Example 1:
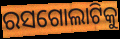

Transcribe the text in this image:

ରସଗୋଲାଟିକୁ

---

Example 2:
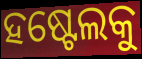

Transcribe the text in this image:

ହଷ୍ଟେଲକୁ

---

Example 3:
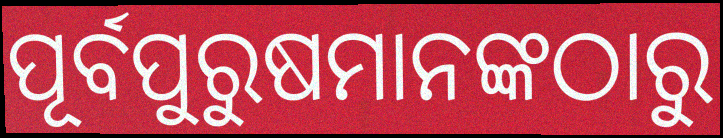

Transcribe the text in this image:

ପୂର୍ବପୁରୁଷମାନଙ୍କଠାରୁ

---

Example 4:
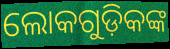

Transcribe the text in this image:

ଲୋକଗୁଡ଼ିକଙ୍କ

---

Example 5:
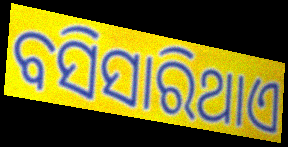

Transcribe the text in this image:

ବସିସାରିଥାଏ